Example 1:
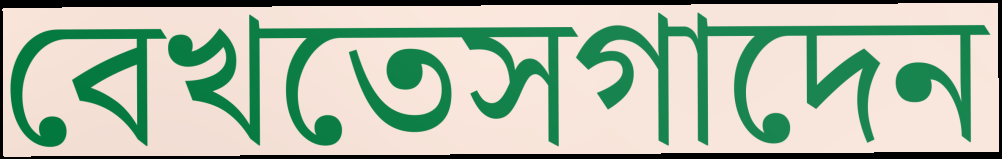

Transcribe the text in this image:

বেখতেসগাদেন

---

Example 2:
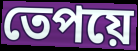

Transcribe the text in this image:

তেপয়ে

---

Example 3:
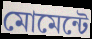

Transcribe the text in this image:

মোমেন্টে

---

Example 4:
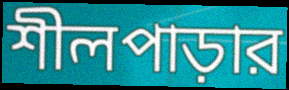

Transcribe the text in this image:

শীলপাড়ার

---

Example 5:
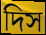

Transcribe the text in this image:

দিস